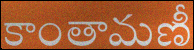
కాంతామణీ